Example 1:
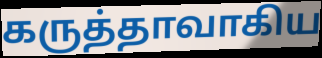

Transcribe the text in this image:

கருத்தாவாகிய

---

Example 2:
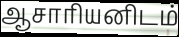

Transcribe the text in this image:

ஆசாரியனிடம்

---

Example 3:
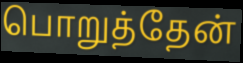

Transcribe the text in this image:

பொறுத்தேன்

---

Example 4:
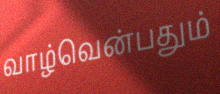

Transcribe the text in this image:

வாழ்வென்பதும்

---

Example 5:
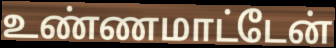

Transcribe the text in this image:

உண்ணமாட்டேன்